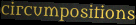
circumpositions